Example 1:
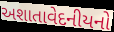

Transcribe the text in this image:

અશાતાવેદનીયનો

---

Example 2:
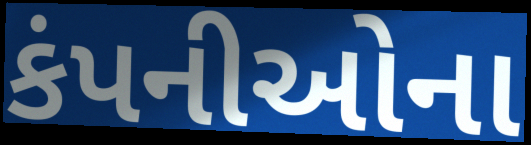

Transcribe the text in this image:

કંપનીઓના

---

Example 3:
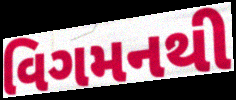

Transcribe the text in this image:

વિગમનથી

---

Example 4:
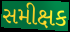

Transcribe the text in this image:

સમીક્ષક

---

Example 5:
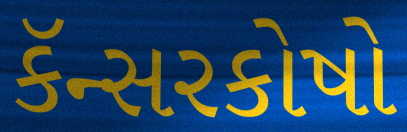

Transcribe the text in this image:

કૅન્સરકોષો